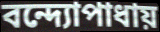
বন্দ্যোপাধায়